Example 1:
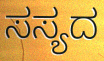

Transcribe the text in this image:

ಸಸ್ಯದ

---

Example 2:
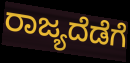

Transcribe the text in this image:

ರಾಜ್ಯದೆಡೆಗೆ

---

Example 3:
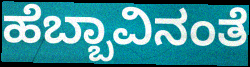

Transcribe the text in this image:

ಹೆಬ್ಬಾವಿನಂತೆ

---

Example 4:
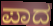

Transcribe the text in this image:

ಪಾದ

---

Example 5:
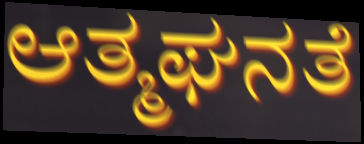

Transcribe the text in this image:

ಆತ್ಮಘನತೆ